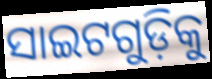
ସାଇଟଗୁଡ଼ିକୁ